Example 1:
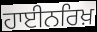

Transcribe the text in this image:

ਹਾਈਨਰਿਖ਼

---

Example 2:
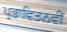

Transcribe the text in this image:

ਪ੍ਰਭਾਵਿਤਨਵੀਂ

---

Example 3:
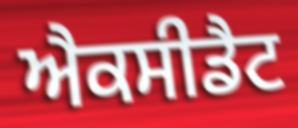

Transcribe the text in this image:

ਐਕਸੀਡੈਟ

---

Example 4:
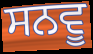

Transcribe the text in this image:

ਸਨਵੂ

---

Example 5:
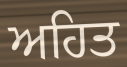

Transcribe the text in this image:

ਅਹਿਤ